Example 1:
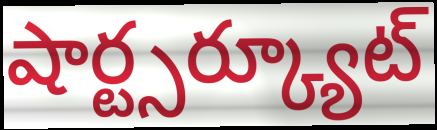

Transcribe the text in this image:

షార్ట్సర్క్యూట్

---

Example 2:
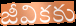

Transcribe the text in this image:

జీవికకు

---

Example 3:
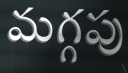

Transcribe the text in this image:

మగ్గపు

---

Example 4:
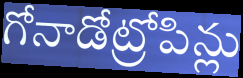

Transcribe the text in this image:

గోనాడోట్రోపిన్లు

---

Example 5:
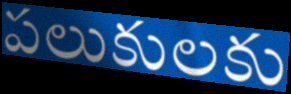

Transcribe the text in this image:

పలుకులకు